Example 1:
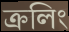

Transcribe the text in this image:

ক্রলিং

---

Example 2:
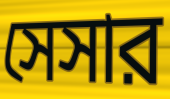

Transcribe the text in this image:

সেসার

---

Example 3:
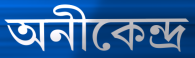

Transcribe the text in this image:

অনীকেন্দ্র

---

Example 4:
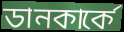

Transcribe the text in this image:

ডানকার্কে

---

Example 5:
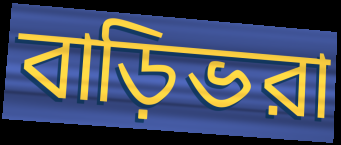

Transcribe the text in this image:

বাড়িভরা